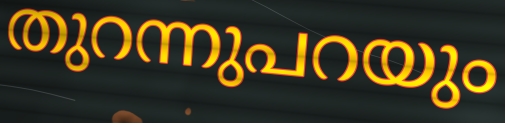
തുറന്നുപറയും